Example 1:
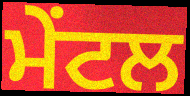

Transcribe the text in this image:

ਮੇਂਟਲ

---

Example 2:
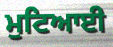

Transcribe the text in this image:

ਮੁਟਿਆਈ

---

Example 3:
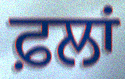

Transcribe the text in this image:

ਫ਼ਲਾਂ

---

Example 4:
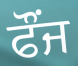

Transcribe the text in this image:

ਫੌਂਜ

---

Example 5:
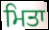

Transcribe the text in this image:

ਮਿਤਾ